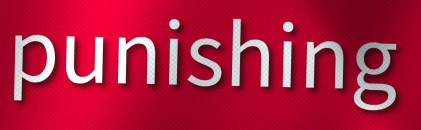
punishing